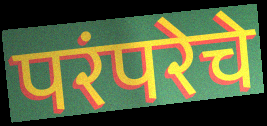
परंपरेचे